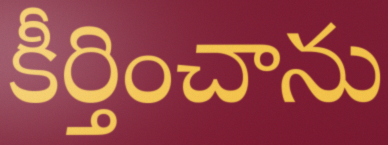
కీర్తించాను